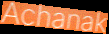
Achanak